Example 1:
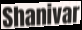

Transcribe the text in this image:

Shanivar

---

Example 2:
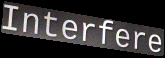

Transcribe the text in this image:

Interfere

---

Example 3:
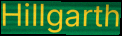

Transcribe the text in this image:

Hillgarth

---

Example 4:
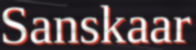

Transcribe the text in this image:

Sanskaar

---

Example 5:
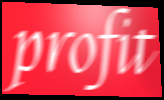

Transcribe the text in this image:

profit